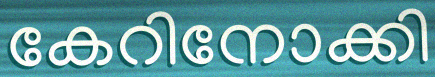
കേറിനോക്കി